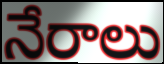
నేరాలు